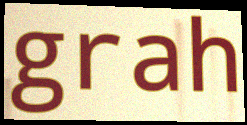
grah